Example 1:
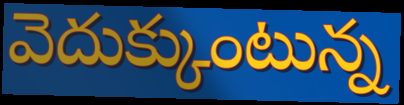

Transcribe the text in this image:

వెదుక్కుంటున్న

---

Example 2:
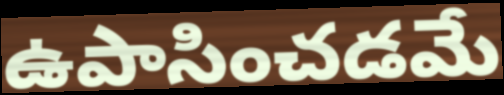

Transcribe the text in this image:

ఉపాసించడమే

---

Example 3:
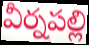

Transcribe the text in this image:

వీర్నపల్లి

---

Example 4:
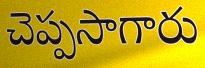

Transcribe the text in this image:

చెప్పసాగారు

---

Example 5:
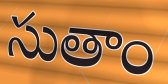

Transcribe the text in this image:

సుతాం